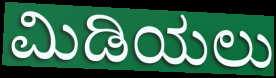
ಮಿಡಿಯಲು